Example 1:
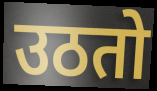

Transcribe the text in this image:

उठतो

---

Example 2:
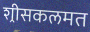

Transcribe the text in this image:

श्रीसकलमत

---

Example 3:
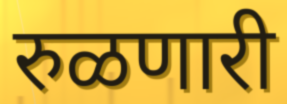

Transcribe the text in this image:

रुळणारी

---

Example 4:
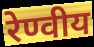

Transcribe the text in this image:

रेण्वीय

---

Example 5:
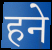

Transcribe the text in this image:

हने